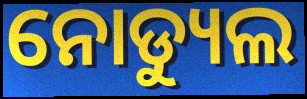
ନୋଡ୍ୟୁଲ